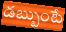
డబ్బుంటే